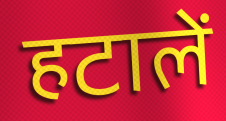
हटालें